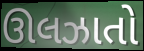
ઊલઝાતો